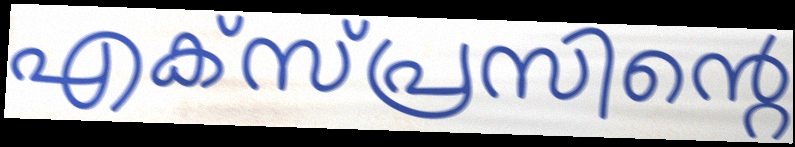
എക്സ്പ്രസിന്റെ